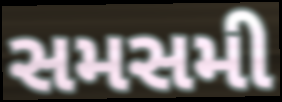
સમસમી